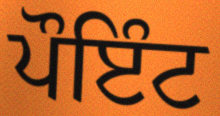
ਪੌਇੰਟ